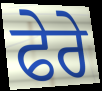
ਫੇਰੇ